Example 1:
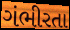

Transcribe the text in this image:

ગંભીરતા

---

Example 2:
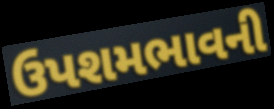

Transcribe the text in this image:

ઉપશમભાવની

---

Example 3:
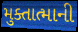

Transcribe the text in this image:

મુક્તાત્માની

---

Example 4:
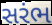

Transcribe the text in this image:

સરંભ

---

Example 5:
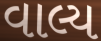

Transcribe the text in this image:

વાલ્ય